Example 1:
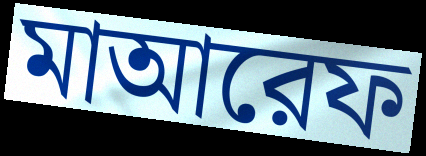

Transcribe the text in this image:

মাআরেফ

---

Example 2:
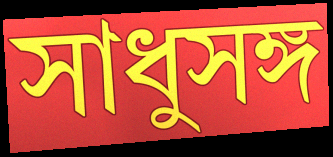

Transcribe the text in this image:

সাধুসঙ্গ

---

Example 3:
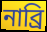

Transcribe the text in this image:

নাব্রি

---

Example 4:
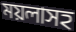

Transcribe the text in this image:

ময়লাসহ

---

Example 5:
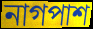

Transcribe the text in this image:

নাগপাশ